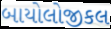
બાયોલોજીકલ